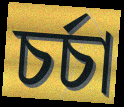
চর্চা